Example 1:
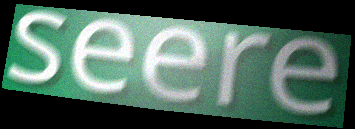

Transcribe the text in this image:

seere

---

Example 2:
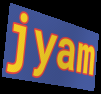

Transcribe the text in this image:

jyam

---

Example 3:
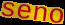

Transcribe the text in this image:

seno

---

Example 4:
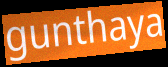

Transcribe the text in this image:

gunthaya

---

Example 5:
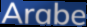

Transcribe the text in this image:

Arabe